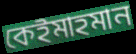
কেইমাহমান